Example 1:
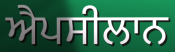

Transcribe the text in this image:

ਐਪਸੀਲਾਨ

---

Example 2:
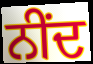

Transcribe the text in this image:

ਨੀਂਦ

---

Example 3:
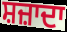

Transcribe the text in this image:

ਸ਼ਜ਼ਾਦਾ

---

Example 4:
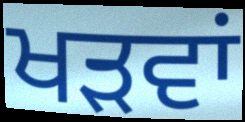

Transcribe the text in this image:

ਖੜਵਾਂ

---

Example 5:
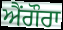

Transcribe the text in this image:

ਐਂਗੌਰਾ